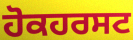
ਹੋਕਹਰਸਟ